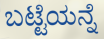
ಬಟ್ಟೆಯನ್ನೆ